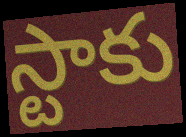
స్టాకు